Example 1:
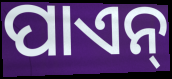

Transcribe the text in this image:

ପାଏନ୍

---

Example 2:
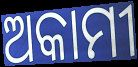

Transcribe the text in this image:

ଅକାମୀ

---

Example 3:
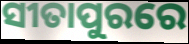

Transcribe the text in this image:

ସୀତାପୁରରେ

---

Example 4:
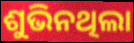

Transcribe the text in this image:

ଶୁଭିନଥିଲା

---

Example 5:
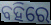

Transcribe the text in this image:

ବହିରେ